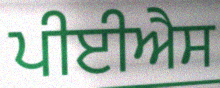
ਪੀਈਐਸ